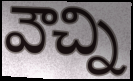
వౌచ్ని